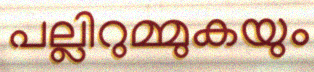
പല്ലിറുമ്മുകയും